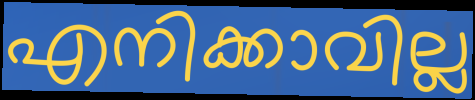
എനിക്കാവില്ല